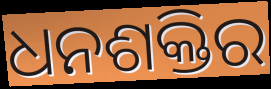
ଧନଶକ୍ତିର